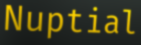
Nuptial